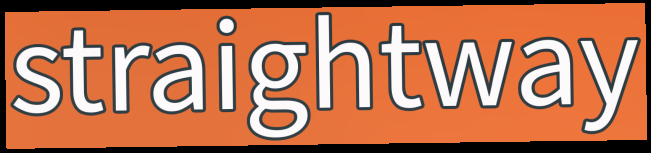
straightway